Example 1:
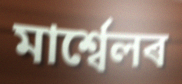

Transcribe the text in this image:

মাৰ্শ্বেলৰ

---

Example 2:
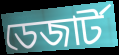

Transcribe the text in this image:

ডেজাৰ্ট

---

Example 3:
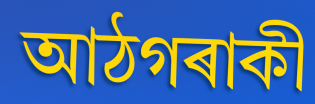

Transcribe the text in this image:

আঠগৰাকী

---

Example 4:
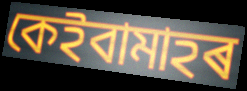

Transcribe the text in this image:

কেইবামাহৰ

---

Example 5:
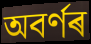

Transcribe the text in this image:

অবৰ্ণৰ